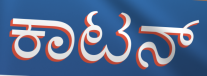
ಕಾಟನ್